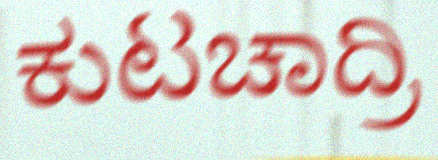
ಕುಟಚಾದ್ರಿ